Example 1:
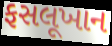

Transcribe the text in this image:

ફસલૂખાન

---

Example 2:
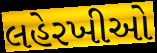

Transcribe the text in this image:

લહેરખીઓ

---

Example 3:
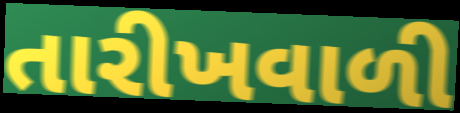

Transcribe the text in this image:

તારીખવાળી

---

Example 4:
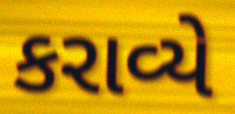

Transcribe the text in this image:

કરાવ્યે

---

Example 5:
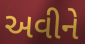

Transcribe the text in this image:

અવીને